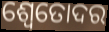
ଶ୍ୱେତୋଦର